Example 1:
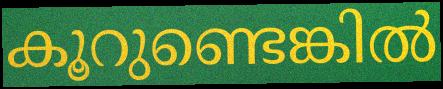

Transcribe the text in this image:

കൂറുണ്ടെങ്കിൽ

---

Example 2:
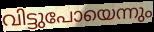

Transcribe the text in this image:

വിട്ടുപോയെന്നും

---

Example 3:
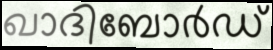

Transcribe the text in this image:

ഖാദിബോർഡ്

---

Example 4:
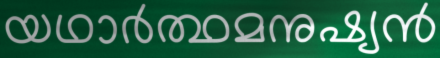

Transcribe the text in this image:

യഥാർത്ഥമനുഷ്യൻ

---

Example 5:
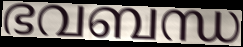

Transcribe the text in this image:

ഭവബന്ധ